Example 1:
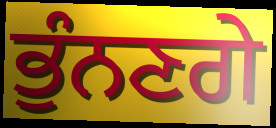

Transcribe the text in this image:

ਭੁੰਨਣਗੇ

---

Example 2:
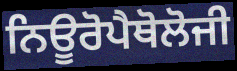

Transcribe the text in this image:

ਨਿਊਰੋਪੈਥੋਲੋਜੀ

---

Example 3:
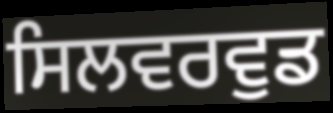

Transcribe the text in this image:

ਸਿਲਵਰਵੁਡ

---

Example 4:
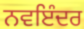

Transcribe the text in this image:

ਨਵਇੰਦਰ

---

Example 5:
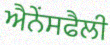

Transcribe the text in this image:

ਐਨੇਂਸਫੈਲੀ